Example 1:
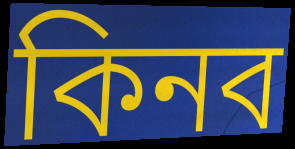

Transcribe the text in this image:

কিনব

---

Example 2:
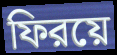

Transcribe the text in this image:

ফিরয়ে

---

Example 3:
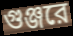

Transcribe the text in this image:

গুঞ্জরে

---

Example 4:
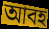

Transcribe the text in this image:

আবহ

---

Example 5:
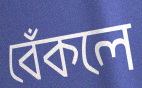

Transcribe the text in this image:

বেঁকলে